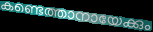
കണ്ടെത്താനായേക്കും